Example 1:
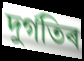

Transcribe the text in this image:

দুৰ্গতিৰ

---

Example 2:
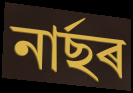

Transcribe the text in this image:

নাৰ্ছৰ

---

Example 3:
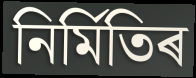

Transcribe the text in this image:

নিৰ্মিতিৰ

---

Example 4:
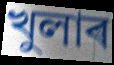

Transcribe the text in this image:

খুলাৰ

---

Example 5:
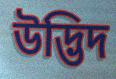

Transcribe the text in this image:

উদ্ভিদ